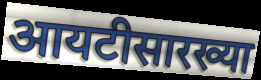
आयटीसारख्या